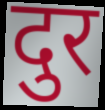
दुर